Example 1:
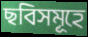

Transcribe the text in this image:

ছবিসমূহে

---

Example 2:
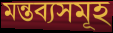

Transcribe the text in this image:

মন্তব্যসমূহ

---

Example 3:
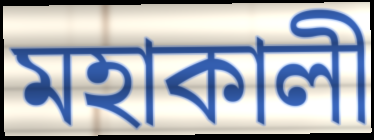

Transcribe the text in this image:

মহাকালী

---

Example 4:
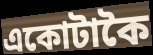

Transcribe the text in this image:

একোটাকৈ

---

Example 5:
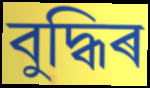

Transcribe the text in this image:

বুদ্ধিৰ